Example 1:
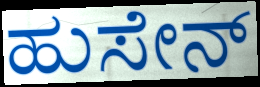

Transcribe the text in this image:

ಹುಸೇನ್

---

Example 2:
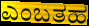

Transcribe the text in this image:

ಎಂಬತಹ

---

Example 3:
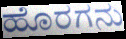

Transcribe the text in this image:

ಹೊರಗನು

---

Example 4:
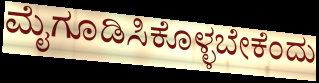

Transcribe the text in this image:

ಮೈಗೂಡಿಸಿಕೊಳ್ಳಬೇಕೆಂದು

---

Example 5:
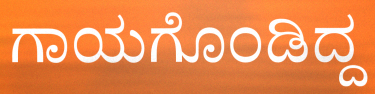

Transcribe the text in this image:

ಗಾಯಗೊಂಡಿದ್ದ